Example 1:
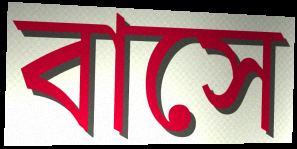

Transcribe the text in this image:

বাসে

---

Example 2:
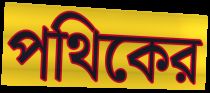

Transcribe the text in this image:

পথিকের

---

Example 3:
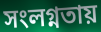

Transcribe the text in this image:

সংলগ্নতায়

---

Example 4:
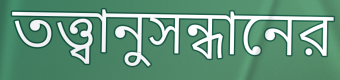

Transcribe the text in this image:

তত্ত্বানুসন্ধানের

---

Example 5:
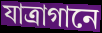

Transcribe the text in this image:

যাত্রাগানে